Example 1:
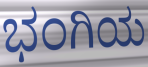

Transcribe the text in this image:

ಭಂಗಿಯ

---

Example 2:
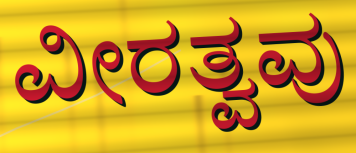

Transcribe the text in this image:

ವೀರತ್ವವು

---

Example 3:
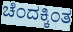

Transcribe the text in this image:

ಚೆಂದಕ್ಕಿಂತ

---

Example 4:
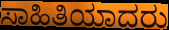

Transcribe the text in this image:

ಸಾಹಿತಿಯಾದರು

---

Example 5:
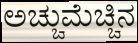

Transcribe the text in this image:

ಅಚ್ಚುಮೆಚ್ಚಿನ